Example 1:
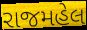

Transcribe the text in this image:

રાજમહેલ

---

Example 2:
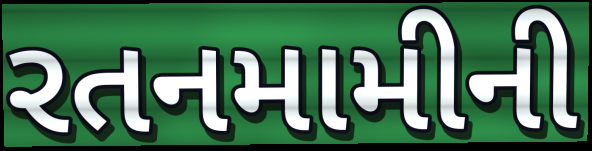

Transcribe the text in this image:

રતનમામીની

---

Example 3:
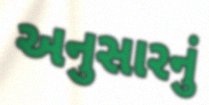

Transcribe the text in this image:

અનુસારનું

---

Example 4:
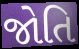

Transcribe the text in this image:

જોતિ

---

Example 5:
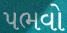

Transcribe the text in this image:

પભવો